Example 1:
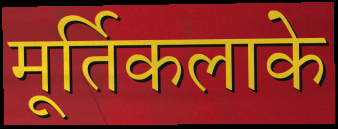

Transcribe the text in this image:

मूर्तिकलाके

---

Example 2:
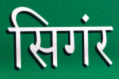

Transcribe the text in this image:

सिगंर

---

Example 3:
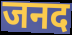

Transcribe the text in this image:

जनद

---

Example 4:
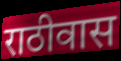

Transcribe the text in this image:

राठीवास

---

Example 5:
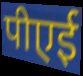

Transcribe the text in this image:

पीएई